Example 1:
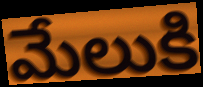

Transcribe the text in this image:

మేలుకి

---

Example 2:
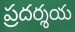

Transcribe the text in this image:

ప్రదర్శయ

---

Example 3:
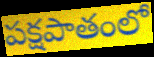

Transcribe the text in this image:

పక్షపాతంలో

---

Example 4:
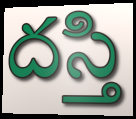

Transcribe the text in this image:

దస్తి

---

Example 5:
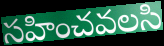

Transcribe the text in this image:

సహించవలసి